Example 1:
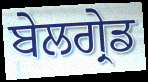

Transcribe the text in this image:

ਬੇਲਗ੍ਰੇਡ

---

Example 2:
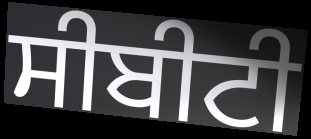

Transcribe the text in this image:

ਸੀਬੀਟੀ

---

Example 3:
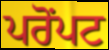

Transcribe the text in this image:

ਪਰੋਂਪਟ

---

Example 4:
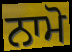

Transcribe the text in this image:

ਨਾਮੋ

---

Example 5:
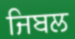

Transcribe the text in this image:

ਜਿਬਲ